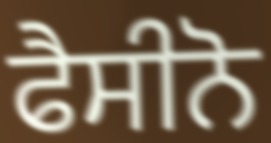
ਫੈਸੀਨੋ